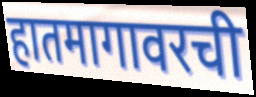
हातमागावरची